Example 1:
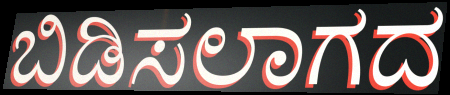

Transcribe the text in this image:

ಬಿಡಿಸಲಾಗದ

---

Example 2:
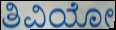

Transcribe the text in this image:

ತಿವಿಯೋ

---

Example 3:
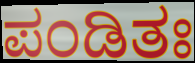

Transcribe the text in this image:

ಪಂಡಿತಃ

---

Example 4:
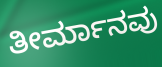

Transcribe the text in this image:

ತೀರ್ಮಾನವು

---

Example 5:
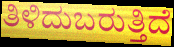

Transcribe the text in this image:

ತಿಳಿದುಬರುತ್ತಿದೆ